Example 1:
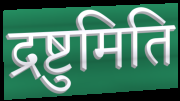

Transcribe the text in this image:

द्रष्टुमिति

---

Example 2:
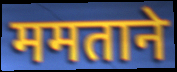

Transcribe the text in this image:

ममताने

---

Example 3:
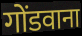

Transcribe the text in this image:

गोंडवाना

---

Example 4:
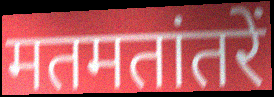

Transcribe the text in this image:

मतमतांतरें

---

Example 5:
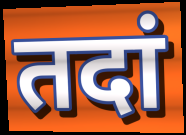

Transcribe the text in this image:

तदां